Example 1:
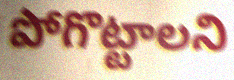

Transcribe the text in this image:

పోగొట్టాలని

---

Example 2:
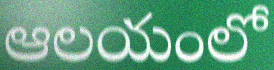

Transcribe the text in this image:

ఆలయంలో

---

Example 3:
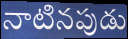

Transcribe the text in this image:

నాటినపుడు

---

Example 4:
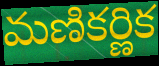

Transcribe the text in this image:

మణికర్ణిక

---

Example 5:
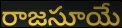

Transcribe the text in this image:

రాజసూయే